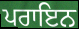
ਪਰਾਇਨ